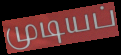
முடியப்